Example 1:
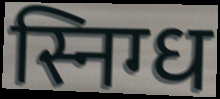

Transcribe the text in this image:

स्‍निग्ध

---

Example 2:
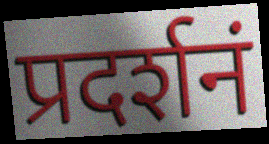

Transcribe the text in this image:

प्रदर्शनं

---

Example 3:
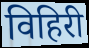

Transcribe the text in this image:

विहिरी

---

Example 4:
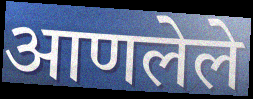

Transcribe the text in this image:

आणलेले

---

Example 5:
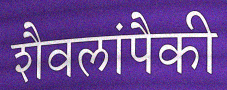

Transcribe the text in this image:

शैवलांपैकी